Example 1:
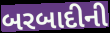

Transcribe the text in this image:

બરબાદીની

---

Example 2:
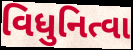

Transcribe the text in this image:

વિધુનિત્વા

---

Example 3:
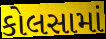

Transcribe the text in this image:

કોલસામાં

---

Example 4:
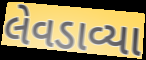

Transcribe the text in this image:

લેવડાવ્યા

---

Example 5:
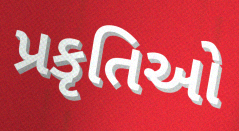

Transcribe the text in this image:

પ્રકૃતિઓ